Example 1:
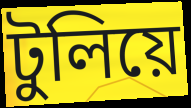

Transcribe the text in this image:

টুলিয়ে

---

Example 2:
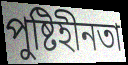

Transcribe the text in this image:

পুষ্টিহীনতা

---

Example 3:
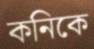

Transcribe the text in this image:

কনিকে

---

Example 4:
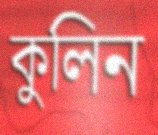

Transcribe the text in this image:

কুলিন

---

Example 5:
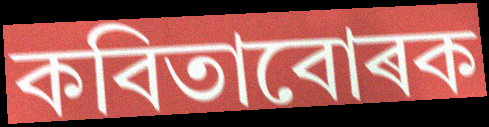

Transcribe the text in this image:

কবিতাবোৰক